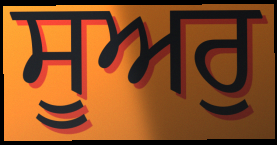
ਸੂਅਰੁ